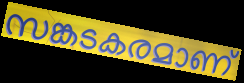
സങ്കടകരമാണ്